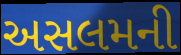
અસલમની